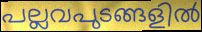
പല്ലവപുടങ്ങളിൽ